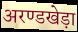
अरण्डखेड़ा